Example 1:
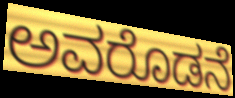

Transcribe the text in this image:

ಅವರೊಡನೆ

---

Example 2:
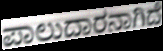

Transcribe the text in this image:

ಪಾಲುದಾರನಾಗಿದೆ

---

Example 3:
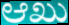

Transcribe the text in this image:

ಆಖು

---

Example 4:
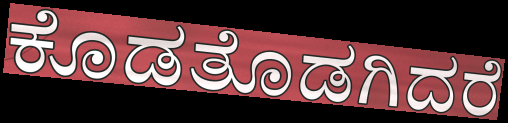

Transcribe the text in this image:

ಕೊಡತೊಡಗಿದರೆ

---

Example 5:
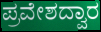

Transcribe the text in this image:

ಪ್ರವೇಶದ್ವಾರ